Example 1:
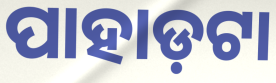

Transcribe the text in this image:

ପାହାଡ଼ଟା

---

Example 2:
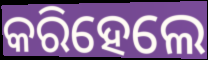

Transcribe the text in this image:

କରିହେଲେ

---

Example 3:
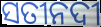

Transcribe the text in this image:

ସତୀନଦୀ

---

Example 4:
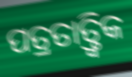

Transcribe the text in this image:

ପତ୍ରତାତ୍ତ୍ୱିକ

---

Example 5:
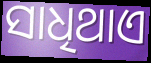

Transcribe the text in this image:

ସାଧିଥାଏ